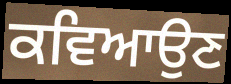
ਕਵਿਆਉਣ